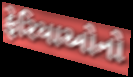
ફેરિયાઓનો